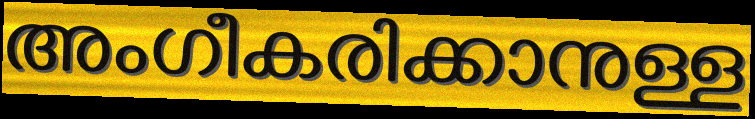
അംഗീകരിക്കാനുള്ള